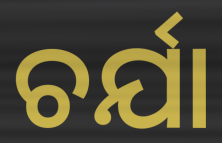
ଚର୍ଯା